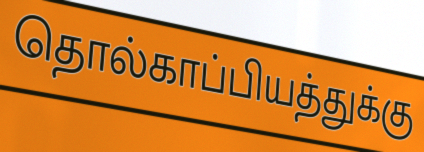
தொல்காப்பியத்துக்கு